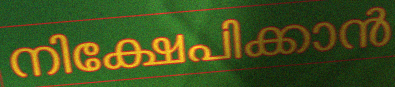
നിക്ഷേപിക്കാൻ